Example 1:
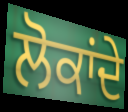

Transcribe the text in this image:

ਲੋਕਾਂਦੇ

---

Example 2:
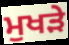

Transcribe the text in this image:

ਮੁਖੜੇ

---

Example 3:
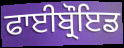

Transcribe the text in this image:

ਫਾਈਬ੍ਰੌਇਡ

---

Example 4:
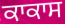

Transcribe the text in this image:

ਕਾਕਾਸ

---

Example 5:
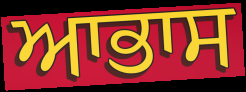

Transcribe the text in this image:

ਆਭਾਸ